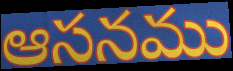
ఆసనము